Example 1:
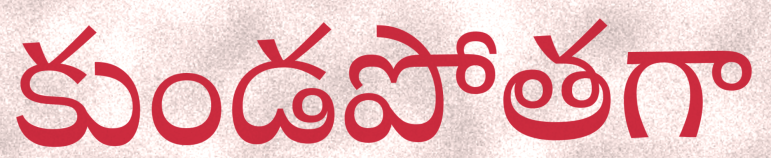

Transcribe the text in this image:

కుండపోతగా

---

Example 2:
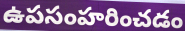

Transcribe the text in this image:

ఉపసంహరించడం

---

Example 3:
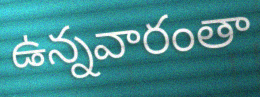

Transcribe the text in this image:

ఉన్నవారంతా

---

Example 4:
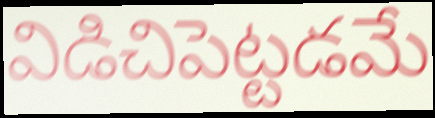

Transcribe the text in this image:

విడిచిపెట్టడమే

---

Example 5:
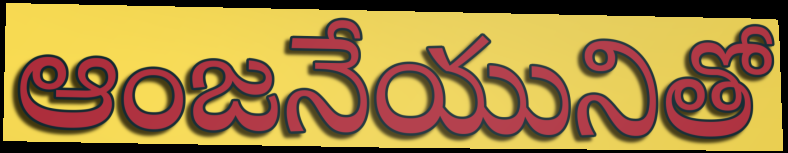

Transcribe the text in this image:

ఆంజనేయునితో